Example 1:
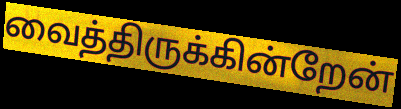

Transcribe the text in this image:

வைத்திருக்கின்றேன்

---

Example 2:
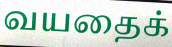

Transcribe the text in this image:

வயதைக்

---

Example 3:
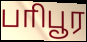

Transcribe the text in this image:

பரிபூர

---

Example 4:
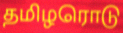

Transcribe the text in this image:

தமிழரொடு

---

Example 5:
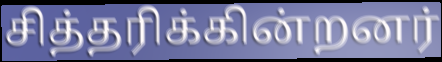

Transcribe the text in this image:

சித்தரிக்கின்றனர்